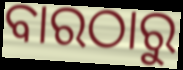
ବାରଠାରୁ